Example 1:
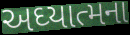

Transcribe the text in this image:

અઘ્યાત્મના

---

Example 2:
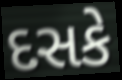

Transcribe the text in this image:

દસકે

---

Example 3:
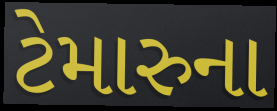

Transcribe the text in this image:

ટેમારુના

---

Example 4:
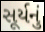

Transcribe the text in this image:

સૂર્યનું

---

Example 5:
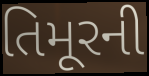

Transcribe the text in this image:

તિમૂરની